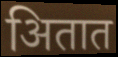
अितात